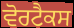
ਵੋਰਟੈਕਸ